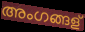
അംഗങ്ങള്